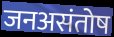
जनअसंतोष